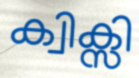
ക്വിക്സി